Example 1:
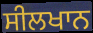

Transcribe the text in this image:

ਸੀਲਖਾਨ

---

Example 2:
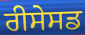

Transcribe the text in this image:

ਰੀਸੇਸਡ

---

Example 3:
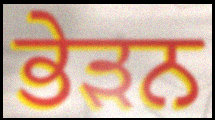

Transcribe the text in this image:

ਭੇੜਨ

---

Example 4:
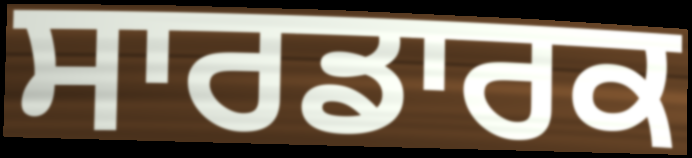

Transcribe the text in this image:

ਸਾਰਡਾਰਕ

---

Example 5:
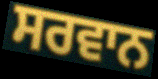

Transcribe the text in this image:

ਸਰਵਾਨ